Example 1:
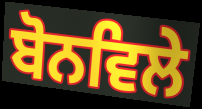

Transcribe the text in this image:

ਬੋਨਵਿਲੇ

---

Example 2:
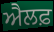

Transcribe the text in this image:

ਐਲਫ਼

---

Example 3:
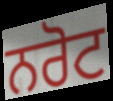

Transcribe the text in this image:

ਨਰੋਟ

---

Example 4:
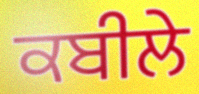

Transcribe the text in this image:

ਕਬੀਲੇ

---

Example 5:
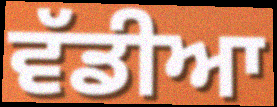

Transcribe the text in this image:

ਵੱਡੀਆ